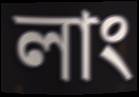
লাং